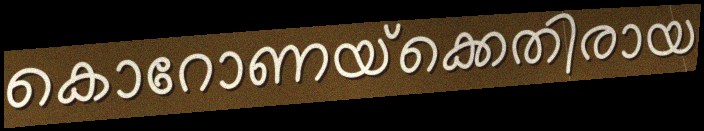
കൊറോണയ്‌ക്കെതിരായ